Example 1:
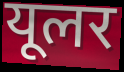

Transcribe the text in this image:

यूलर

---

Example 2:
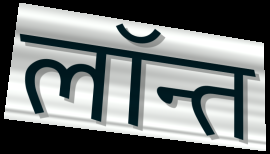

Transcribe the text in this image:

लॉन्त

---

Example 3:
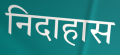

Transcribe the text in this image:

निदाहास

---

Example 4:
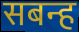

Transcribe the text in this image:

सबन्ह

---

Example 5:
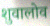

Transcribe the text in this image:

शुवालोव